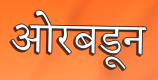
ओरबडून